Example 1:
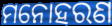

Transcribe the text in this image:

ମନୋହରଣ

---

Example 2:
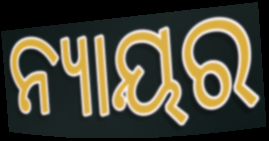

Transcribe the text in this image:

ନ୍ୟାୟର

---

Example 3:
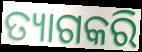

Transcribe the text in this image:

ତ୍ୟାଗକରି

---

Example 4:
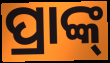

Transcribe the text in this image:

ପ୍ରାଙ୍କ୍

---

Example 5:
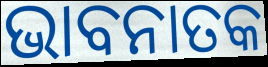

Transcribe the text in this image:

ଭାବନାତକ